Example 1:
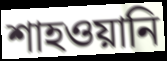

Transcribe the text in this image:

শাহওয়ানি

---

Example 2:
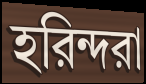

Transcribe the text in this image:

হরিন্দরা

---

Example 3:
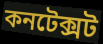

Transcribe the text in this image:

কনটেক্সট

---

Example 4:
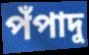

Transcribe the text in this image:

পঁপাদু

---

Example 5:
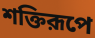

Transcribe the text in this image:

শক্তিরূপে